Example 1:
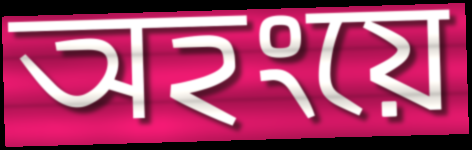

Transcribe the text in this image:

অহংয়ে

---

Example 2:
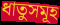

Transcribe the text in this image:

ধাতুসমূহ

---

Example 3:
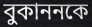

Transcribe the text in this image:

বুকাননকে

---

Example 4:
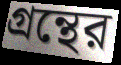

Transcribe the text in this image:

গ্রন্থের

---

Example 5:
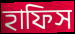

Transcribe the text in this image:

হাফিস